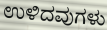
ಉಳಿದವುಗಳು